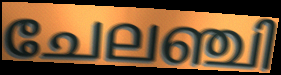
ചേലഞ്ചി